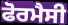
ਫੋਰਮੈਸੀ